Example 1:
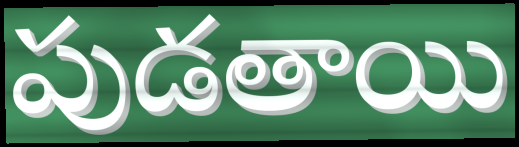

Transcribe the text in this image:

పుడతాయి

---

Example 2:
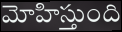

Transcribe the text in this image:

మోహిస్తుంది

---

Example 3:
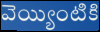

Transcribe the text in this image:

వెయ్యింటికి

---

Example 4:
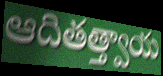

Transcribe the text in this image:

ఆదితత్త్వాయ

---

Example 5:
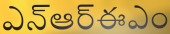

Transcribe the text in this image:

ఎన్ఆర్ఈఎం